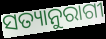
ସତ୍ୟାନୁରାଗୀ